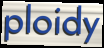
ploidy